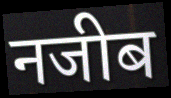
नजीब